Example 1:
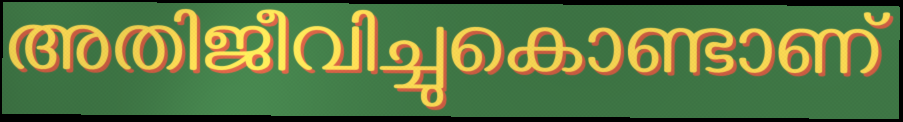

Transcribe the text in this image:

അതിജീവിച്ചുകൊണ്ടാണ്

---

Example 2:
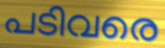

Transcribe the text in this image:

പടിവരെ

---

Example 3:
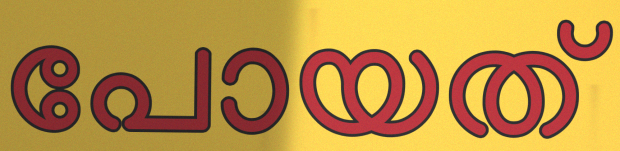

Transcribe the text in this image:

പോയത്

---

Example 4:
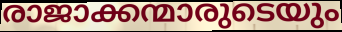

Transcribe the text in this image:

രാജാക്കന്മാരുടെയും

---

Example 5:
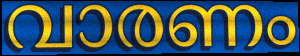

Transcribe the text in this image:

വാരണം